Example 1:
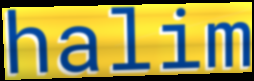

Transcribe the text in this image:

halim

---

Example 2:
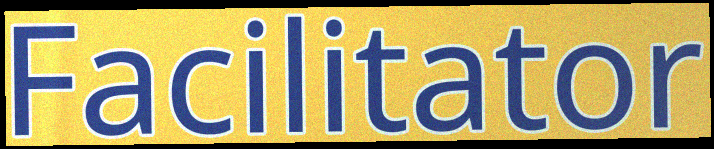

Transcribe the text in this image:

Facilitator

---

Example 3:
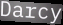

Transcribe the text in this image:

Darcy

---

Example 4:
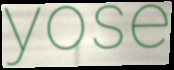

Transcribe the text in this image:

yose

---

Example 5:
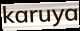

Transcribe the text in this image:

karuya